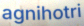
agnihotri